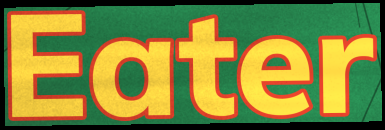
Eater